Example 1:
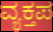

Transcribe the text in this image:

ವ್ಯಕ್ತಪ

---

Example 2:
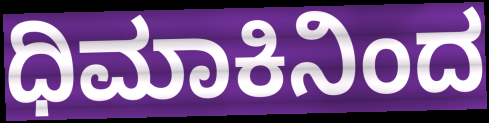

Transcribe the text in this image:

ಧಿಮಾಕಿನಿಂದ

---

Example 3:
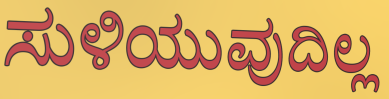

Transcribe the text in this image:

ಸುಳಿಯುವುದಿಲ್ಲ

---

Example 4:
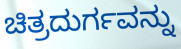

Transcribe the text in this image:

ಚಿತ್ರದುರ್ಗವನ್ನು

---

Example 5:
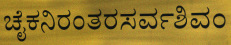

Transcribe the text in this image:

ಚೈಕನಿರಂತರಸರ್ವಶಿವಂ